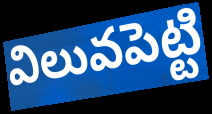
విలువపెట్టి